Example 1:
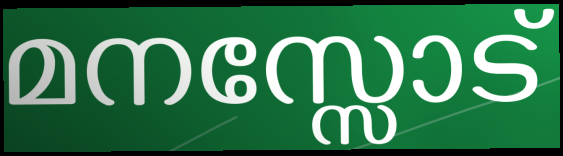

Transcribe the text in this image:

മനസ്സോട്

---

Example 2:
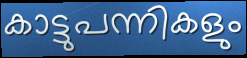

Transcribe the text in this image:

കാട്ടുപന്നികളും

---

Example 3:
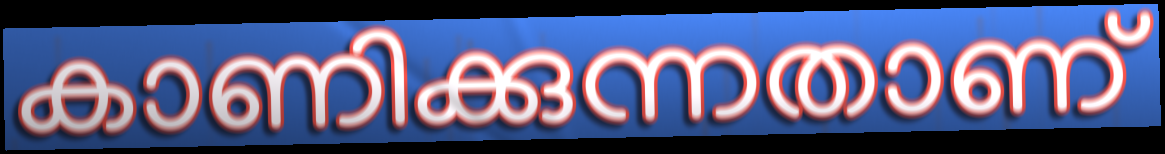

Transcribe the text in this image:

കാണിക്കുന്നതാണ്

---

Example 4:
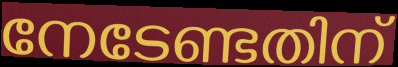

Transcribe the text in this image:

നേടേണ്ടതിന്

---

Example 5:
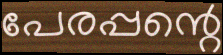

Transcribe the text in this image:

പേരപ്പന്റെ